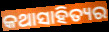
କଥାସାହିତ୍ୟର